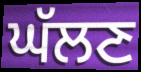
ਘੱਲਣ